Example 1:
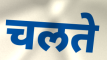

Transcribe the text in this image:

चलते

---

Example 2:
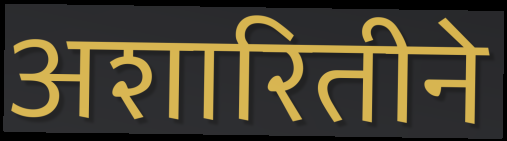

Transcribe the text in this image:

अशारितीने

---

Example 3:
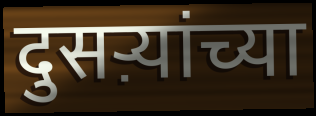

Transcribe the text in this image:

दुसऱ्‍यांच्या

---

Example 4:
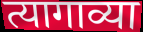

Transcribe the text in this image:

त्यागाव्या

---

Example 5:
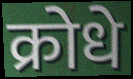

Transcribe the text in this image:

क्रोधे